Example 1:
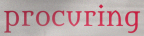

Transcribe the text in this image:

procuring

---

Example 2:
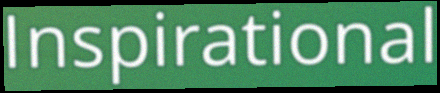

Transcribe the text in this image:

Inspirational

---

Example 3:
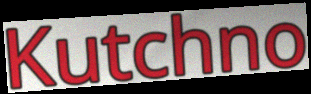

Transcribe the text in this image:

Kutchno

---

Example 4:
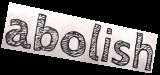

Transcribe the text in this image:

abolish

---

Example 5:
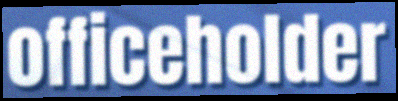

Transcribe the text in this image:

officeholder